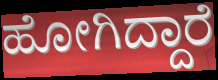
ಹೋಗಿದ್ದಾರೆ